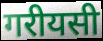
गरीयसी